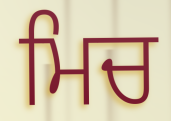
ਮਿਚ